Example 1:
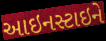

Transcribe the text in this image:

આઇનસ્ટાઇને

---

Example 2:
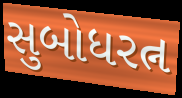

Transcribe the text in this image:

સુબોધરત્ન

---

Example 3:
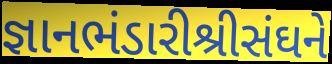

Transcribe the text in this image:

જ્ઞાનભંડારીશ્રીસંઘને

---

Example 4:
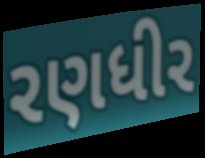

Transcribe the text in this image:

રણધીર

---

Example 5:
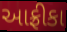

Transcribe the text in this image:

આફ્રીકા